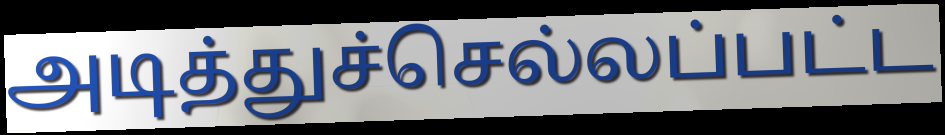
அடித்துச்செல்லப்பட்ட